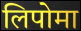
लिपोमा